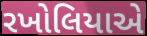
રખોલિયાએ